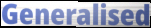
Generalised